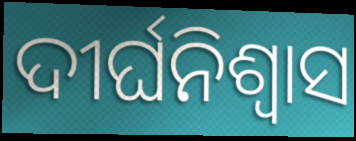
ଦୀର୍ଘନିଶ୍ବାସ